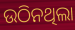
ଉଠିନଥିଲା